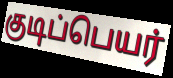
குடிப்பெயர்